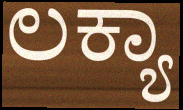
ಲಕ್ಯಾ